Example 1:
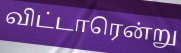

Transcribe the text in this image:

விட்டாரென்று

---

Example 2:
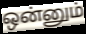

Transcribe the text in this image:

ஒன்னும்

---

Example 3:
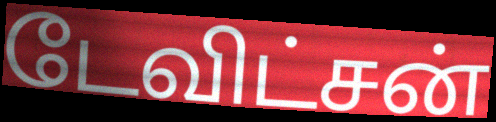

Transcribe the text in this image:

டேவிட்சன்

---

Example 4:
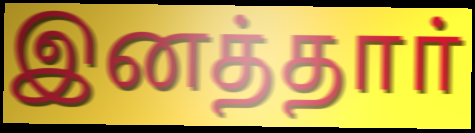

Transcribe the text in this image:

இனத்தார்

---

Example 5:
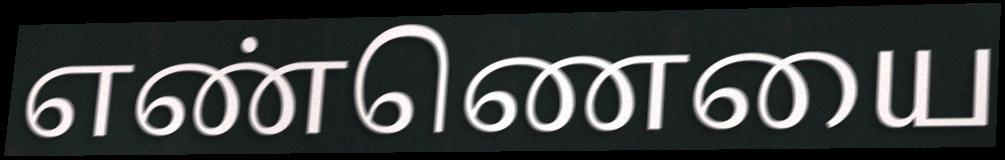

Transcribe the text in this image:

எண்ணெயை